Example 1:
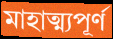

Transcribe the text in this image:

মাহাত্ম্যপূর্ণ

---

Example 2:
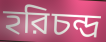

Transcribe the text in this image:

হরিচন্দ্র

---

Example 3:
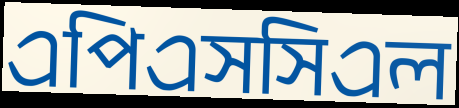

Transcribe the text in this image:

এপিএসসিএল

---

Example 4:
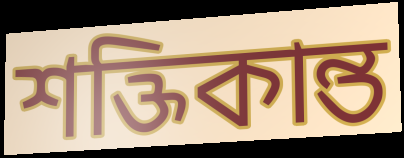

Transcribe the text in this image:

শক্তিকান্ত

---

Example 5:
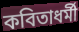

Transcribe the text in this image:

কবিতাধর্মী